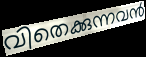
വിതെക്കുന്നവൻ